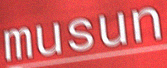
musun